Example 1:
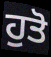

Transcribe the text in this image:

ਹੁਤੋ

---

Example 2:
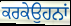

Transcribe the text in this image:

ਕਰਕੇਉਹਨਾਂ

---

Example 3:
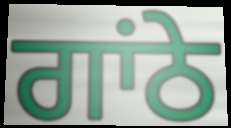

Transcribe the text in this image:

ਗਾਂਠੇ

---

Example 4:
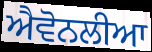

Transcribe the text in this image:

ਐਵੋਨਲੀਆ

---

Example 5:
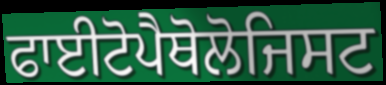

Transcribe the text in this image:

ਫਾਈਟੋਪੈਥੋਲੋਜਿਸਟ